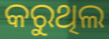
କରୁଥିଲ